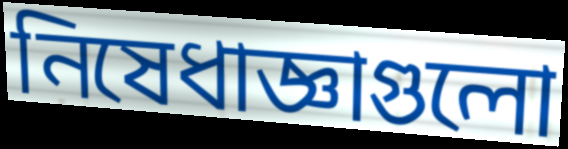
নিষেধাজ্ঞাগুলো